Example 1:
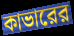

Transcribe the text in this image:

কাভারের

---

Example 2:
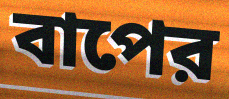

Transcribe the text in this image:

বাপের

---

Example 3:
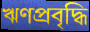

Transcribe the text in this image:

ঋণপ্রবৃদ্ধি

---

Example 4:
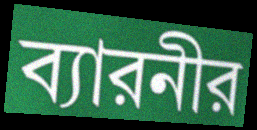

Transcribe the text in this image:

ব্যারনীর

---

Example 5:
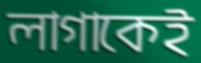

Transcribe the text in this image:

লাগাকেই